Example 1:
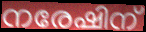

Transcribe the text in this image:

നരേഷിന്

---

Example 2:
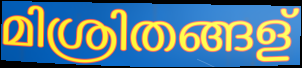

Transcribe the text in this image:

മിശ്രിതങ്ങള്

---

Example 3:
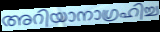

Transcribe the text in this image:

അറിയാനാഗ്രഹിച്ച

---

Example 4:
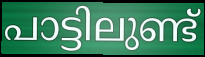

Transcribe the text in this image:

പാട്ടിലുണ്ട്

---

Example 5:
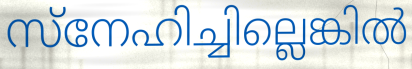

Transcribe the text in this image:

സ്നേഹിച്ചില്ലെങ്കിൽ